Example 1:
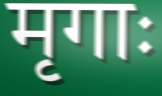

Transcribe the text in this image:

मृगाः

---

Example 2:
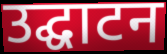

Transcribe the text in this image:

उद्घाटन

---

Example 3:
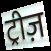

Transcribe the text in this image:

ट्रीज़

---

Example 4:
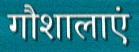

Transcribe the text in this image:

गौशालाएं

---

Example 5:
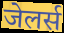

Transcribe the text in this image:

जेलर्स